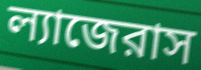
ল্যাজেরাস